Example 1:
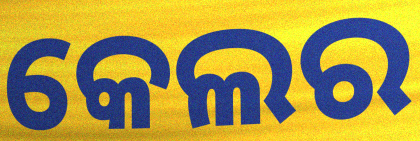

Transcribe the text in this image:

କେଲର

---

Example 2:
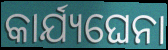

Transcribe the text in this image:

କାର୍ଯ୍ୟଘେନା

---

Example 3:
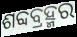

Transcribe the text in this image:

ଶବ୍ଦବ୍ରହ୍ମର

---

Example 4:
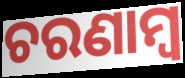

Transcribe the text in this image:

ଚରଣାମ୍ବ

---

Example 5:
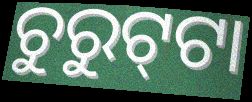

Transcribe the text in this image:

ଚୁରୁଟ୍‍ଟା